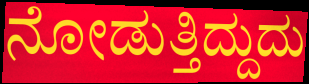
ನೋಡುತ್ತಿದ್ದುದು